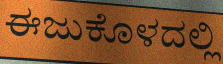
ಈಜುಕೊಳದಲ್ಲಿ